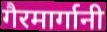
गैरमार्गानी